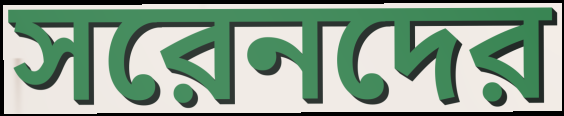
সরেনদের